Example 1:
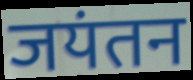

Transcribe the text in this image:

जयंतन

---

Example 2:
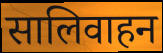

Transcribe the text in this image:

सालिवाहन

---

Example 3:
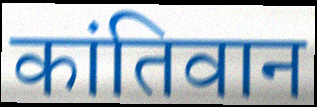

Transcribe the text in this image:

कांतिवान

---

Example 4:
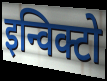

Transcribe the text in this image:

इन्विक्टो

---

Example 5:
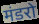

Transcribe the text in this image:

मंडरो